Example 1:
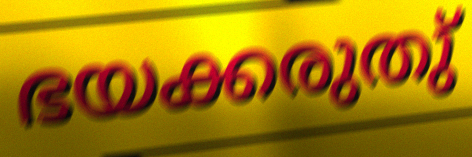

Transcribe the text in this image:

ഭയക്കരുതു്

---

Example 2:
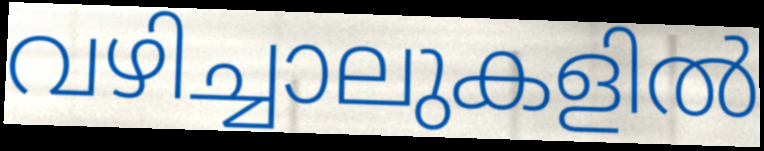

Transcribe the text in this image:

വഴിച്ചാലുകളിൽ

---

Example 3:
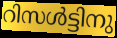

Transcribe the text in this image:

റിസൾട്ടിനു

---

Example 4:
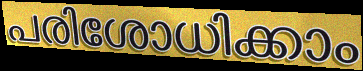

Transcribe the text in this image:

പരിശോധിക്കാം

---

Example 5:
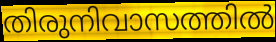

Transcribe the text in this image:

തിരുനിവാസത്തിൽ